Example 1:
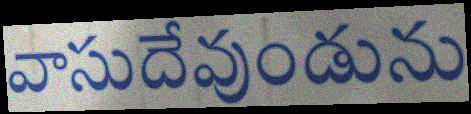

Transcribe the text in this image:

వాసుదేవుండును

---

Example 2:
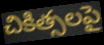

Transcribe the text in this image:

చికిత్సలపై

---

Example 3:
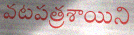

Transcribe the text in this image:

వటపత్రశాయిని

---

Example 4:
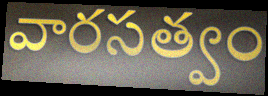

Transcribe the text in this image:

వారసత్వం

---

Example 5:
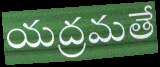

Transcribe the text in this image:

యద్రమతే